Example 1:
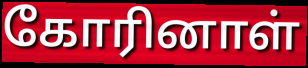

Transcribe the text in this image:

கோரினாள்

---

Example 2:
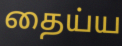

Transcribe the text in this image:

தைய்ய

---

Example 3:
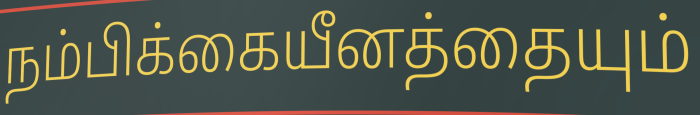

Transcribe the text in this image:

நம்பிக்கையீனத்தையும்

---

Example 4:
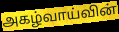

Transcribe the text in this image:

அகழ்வாய்வின்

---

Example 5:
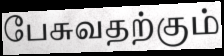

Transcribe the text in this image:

பேசுவதற்கும்